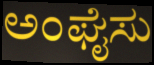
ಅಂಘೈಸು